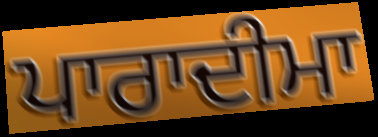
ਪਾਰਾਦੀਮਾ